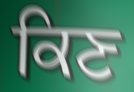
ਕਿਣ